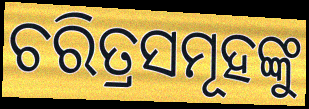
ଚରିତ୍ରସମୂହଙ୍କୁ